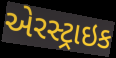
એરસ્ટ્રાઇક